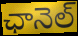
ఛానెల్